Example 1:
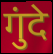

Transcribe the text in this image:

गुंदे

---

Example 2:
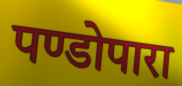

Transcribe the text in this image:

पण्डोपारा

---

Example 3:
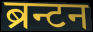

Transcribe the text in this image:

ब्रन्टन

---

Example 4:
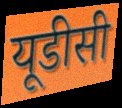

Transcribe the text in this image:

यूडीसी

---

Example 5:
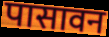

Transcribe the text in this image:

पासावन